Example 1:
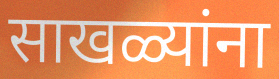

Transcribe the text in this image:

साखळ्यांना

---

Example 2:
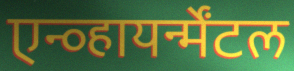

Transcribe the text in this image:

एन्व्हायर्न्मेंटल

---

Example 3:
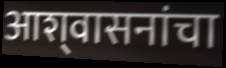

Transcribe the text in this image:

आश्वासनांचा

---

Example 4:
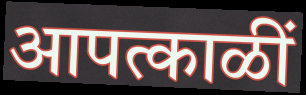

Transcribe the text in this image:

आपत्काळीं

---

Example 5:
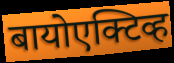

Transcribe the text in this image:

बायोएक्टिव्ह